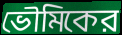
ভৌমিকের